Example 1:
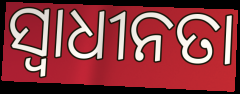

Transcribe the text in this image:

ସ୍ବାଧୀନତା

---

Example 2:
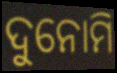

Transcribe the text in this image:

ଦୁନୋମି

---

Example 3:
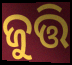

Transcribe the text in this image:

ଜୁତ୍ତି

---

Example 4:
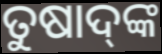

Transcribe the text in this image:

ତୁଷାଦ୍‌ଙ୍କ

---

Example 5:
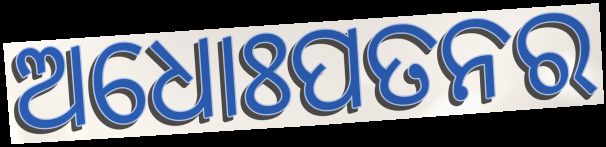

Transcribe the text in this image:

ଅଧୋଃପତନର